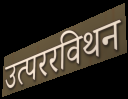
उत्पररविथन